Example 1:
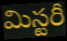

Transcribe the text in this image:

మిస్టరీ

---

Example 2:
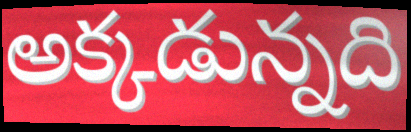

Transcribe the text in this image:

అక్కడున్నది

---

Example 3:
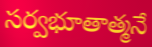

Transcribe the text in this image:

సర్వభూతాత్మనే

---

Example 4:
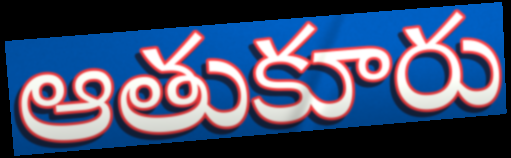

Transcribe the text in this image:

ఆతుకూరు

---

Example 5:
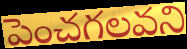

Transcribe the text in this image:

పెంచగలవని